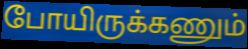
போயிருக்கணும்